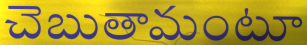
చెబుతామంటూ